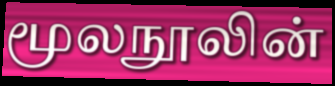
மூலநூலின்